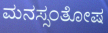
ಮನಸ್ಸಂತೋಷ